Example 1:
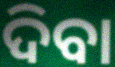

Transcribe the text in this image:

ଦିବା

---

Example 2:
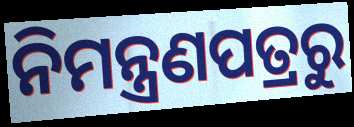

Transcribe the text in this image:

ନିମନ୍ତ୍ରଣପତ୍ରରୁ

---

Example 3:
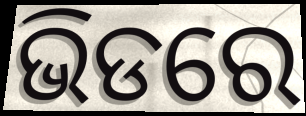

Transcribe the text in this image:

ଭିଡରେ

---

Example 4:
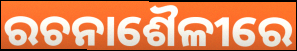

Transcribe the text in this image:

ରଚନାଶୈଳୀରେ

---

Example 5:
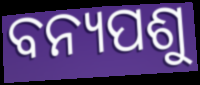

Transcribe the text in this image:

ବନ୍ୟପଶୁ